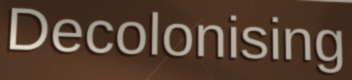
Decolonising